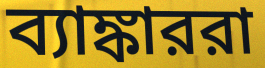
ব্যাঙ্কাররা